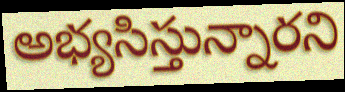
అభ్యసిస్తున్నారని